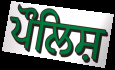
ਪੌਲਿਸ਼